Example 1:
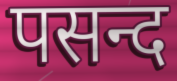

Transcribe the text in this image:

पसन्द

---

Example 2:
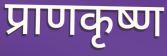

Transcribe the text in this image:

प्राणकृष्ण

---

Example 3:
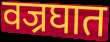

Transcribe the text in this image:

वज्रघात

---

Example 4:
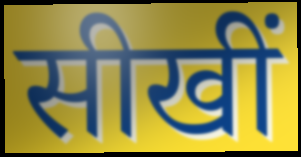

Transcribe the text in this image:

सीखीं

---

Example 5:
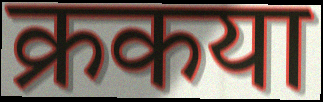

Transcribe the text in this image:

क्रकया